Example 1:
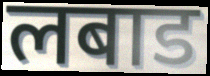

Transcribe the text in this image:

लबाड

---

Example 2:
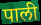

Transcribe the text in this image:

पाली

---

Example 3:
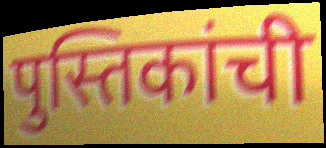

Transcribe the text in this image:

पुस्तिकांची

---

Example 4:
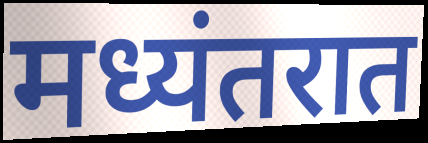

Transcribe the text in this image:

मध्यंतरात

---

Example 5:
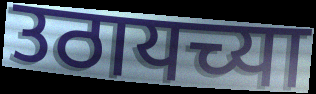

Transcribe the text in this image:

उठायच्या